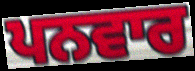
ਪਨਵਾਰ